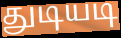
துடியடி